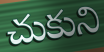
చుకుని